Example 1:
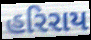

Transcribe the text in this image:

હરિરાય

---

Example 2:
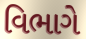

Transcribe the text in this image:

વિભાગે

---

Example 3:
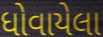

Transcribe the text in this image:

ધોવાયેલા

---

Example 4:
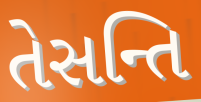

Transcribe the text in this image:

તેસન્તિ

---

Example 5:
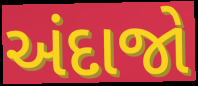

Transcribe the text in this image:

અંદાજો